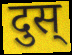
दुस्